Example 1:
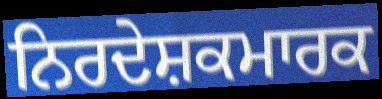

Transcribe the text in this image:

ਨਿਰਦੇਸ਼ਕਮਾਰਕ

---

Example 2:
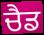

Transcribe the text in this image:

ਚੈਡ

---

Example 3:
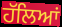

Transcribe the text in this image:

ਹੱਲਿਆਂ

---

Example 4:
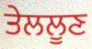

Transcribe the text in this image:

ਤੇਲਲੂਣ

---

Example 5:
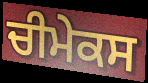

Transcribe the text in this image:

ਚੀਮੇਕਸ